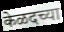
केळदच्या